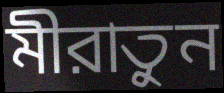
মীরাতুন